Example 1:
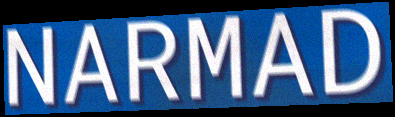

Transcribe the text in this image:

NARMAD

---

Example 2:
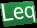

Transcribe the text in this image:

Leq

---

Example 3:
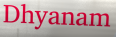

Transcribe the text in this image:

Dhyanam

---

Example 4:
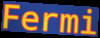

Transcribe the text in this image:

Fermi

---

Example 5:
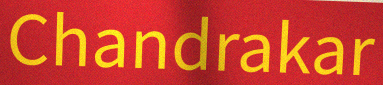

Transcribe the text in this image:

Chandrakar